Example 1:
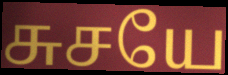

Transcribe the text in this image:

சுசயே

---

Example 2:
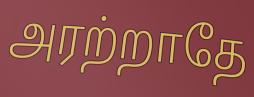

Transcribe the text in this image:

அரற்றாதே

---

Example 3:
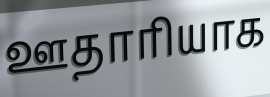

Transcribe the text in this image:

ஊதாரியாக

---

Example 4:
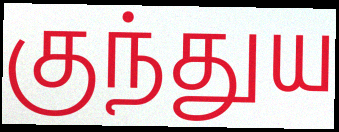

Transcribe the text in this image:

குந்துய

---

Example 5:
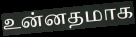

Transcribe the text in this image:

உன்னதமாக